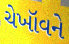
ચેખૉવને